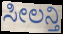
ಸೀಲನ್ತಿ